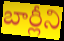
బార్లీని